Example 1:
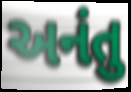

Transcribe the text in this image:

અનંતુ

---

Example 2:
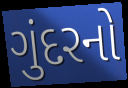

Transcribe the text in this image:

ગુંદરનો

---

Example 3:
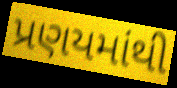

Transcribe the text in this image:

પ્રણયમાંથી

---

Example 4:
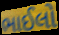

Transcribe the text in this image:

ભાઈલો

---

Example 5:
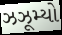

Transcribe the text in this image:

ઝઝૂમ્યો